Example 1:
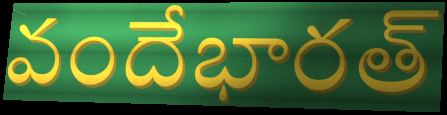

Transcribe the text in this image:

వందేభారత్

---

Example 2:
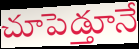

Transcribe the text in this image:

చూపెడ్తూనే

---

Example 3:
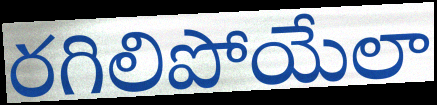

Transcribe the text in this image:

రగిలిపోయేలా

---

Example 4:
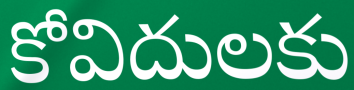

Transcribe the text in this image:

కోవిదులకు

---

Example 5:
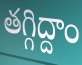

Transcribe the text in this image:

తగ్గిద్దాం